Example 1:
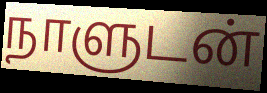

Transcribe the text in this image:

நாளுடன்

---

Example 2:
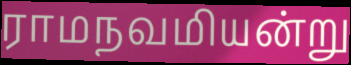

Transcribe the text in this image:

ராமநவமியன்று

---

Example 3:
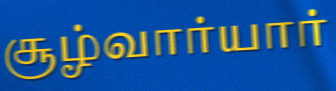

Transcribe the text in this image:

சூழ்வார்யார்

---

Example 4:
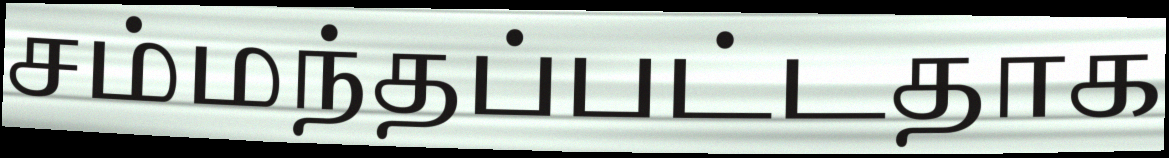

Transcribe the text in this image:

சம்மந்தப்பட்டதாக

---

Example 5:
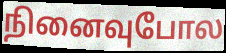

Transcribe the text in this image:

நினைவுபோல